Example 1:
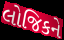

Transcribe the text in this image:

લોજિકને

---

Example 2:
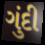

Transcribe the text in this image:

ગુંદી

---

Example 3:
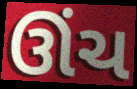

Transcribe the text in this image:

ઊંચ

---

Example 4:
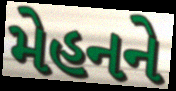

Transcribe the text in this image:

મેહનને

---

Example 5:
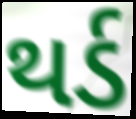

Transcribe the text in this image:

થર્ડ